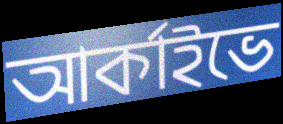
আর্কাইভে